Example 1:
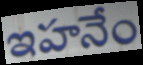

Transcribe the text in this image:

ఇహనేం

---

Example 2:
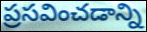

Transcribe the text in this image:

ప్రసవించడాన్ని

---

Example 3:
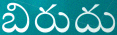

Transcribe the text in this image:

బిరుదు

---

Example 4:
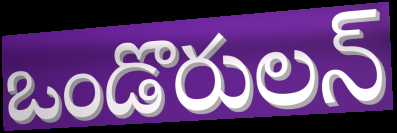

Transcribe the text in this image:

ఒండొరులన్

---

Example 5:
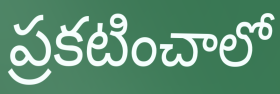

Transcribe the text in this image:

ప్రకటించాలో